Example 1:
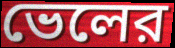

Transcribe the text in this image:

ভেলের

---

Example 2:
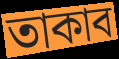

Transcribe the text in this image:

তাকাব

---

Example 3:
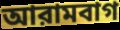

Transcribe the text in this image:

আরামবাগ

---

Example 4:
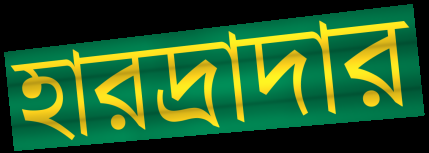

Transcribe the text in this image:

হারদ্রাদার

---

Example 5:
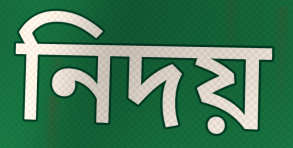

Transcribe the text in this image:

নিদয়